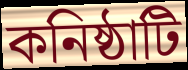
কনিষ্ঠাটি